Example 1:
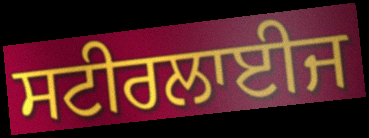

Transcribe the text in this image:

ਸਟੀਰਲਾਈਜ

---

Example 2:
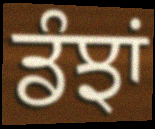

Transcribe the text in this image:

ਡੰਝਾਂ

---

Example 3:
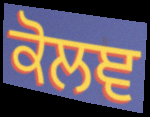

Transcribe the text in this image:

ਕੋਲਞ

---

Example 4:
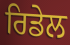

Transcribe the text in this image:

ਰਿਡੇਲ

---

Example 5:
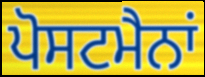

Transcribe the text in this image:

ਪੋਸਟਮੈਨਾਂ